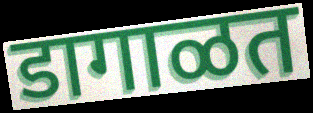
डागाळत